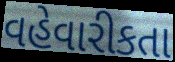
વહેવારીકતા